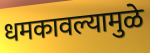
धमकावल्यामुळे